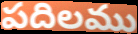
పదిలము